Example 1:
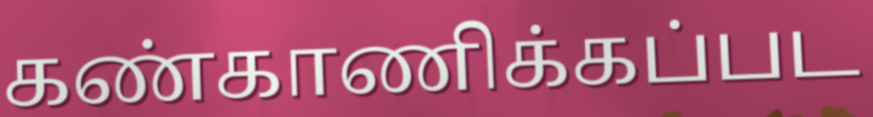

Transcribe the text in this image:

கண்காணிக்கப்பட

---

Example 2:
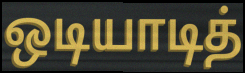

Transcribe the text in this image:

ஒடியாடித்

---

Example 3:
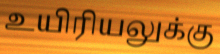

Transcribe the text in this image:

உயிரியலுக்கு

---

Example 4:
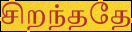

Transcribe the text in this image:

சிறந்ததே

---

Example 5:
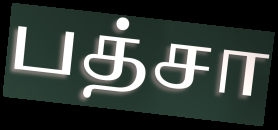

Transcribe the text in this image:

பத்சா